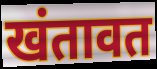
खंतावत